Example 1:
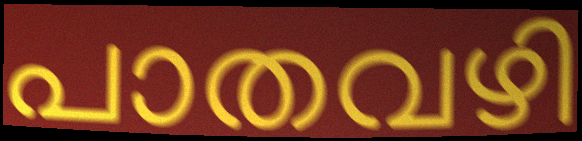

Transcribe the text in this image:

പാതവഴി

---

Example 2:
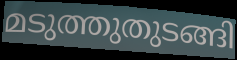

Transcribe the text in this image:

മടുത്തുതുടങ്ങി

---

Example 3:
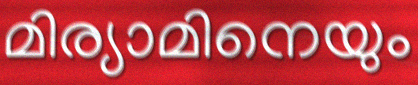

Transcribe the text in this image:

മിര്യാമിനെയും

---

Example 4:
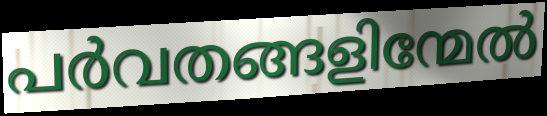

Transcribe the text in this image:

പർവതങ്ങളിന്മേൽ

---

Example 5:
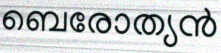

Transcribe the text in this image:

ബെരോത്യൻ